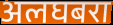
अलघबरा